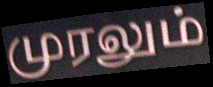
முரலும்